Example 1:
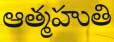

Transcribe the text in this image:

ఆత్మహుతి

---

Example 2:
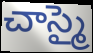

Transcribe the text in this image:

చాస్మై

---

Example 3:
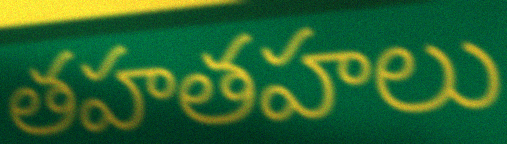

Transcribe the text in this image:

తహతహలు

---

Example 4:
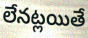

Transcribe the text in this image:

లేనట్లయితే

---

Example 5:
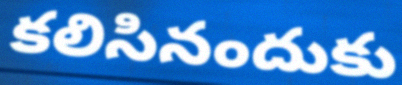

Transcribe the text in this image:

కలిసినందుకు